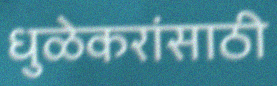
धुळेकरांसाठी